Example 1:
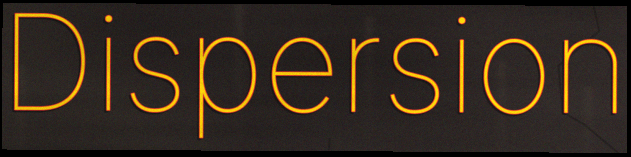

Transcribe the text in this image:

Dispersion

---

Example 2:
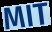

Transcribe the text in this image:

MIT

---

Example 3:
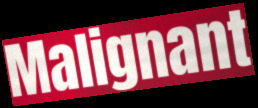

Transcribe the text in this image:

Malignant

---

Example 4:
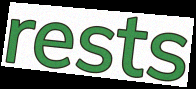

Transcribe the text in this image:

rests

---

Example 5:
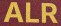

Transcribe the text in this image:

ALR